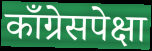
काँग्रेसपेक्षा